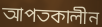
আপতকালীন